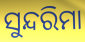
ସୁନ୍ଦରିମା